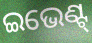
ଇଭେଣ୍ଟ୍